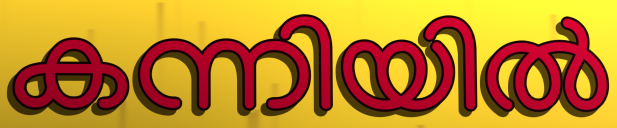
കന്നിയിൽ